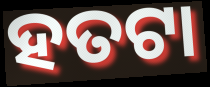
ହତଟା